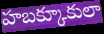
హబక్కూకులా